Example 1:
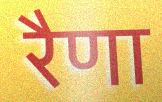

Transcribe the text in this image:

रैणा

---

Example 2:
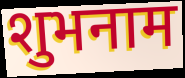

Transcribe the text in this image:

शुभनाम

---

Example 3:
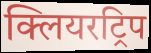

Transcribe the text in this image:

क्लियरट्रिप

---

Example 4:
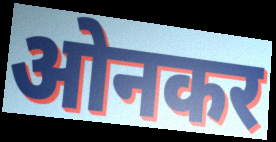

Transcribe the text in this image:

ओनकर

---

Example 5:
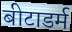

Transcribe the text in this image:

बीटाडर्म